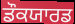
ਡੌਕਯਾਰਡ